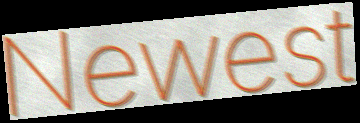
Newest